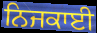
ਨਿਜਕਾਈ